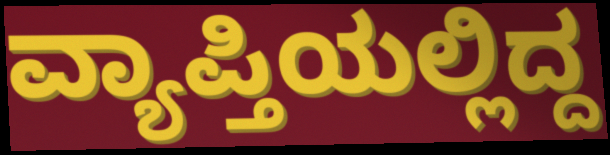
ವ್ಯಾಪ್ತಿಯಲ್ಲಿದ್ದ